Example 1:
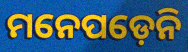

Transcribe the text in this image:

ମନେପଡ଼େନି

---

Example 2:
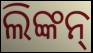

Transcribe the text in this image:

ଲିଙ୍କନ୍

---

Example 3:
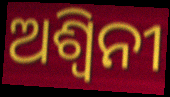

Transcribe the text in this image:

ଅଶ୍ୱିନୀ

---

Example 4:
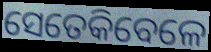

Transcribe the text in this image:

ସେତେକିବେଳେ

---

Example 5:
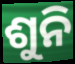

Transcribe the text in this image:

ଶୁନି